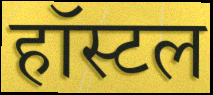
हॉस्टल